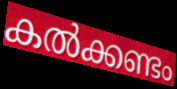
കൽക്കണ്ടം